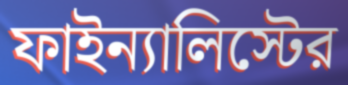
ফাইন্যালিস্টের